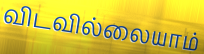
விடவில்லையாம்